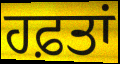
ਹਫ਼ਤਾਂ